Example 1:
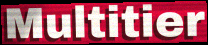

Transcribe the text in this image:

Multitier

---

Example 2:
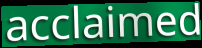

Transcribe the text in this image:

acclaimed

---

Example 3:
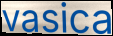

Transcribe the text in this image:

vasica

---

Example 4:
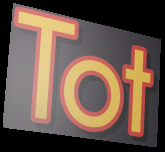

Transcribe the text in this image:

Tot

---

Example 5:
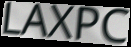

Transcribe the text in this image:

LAXPC